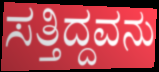
ಸತ್ತಿದ್ದವನು